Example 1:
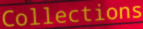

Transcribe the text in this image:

Collections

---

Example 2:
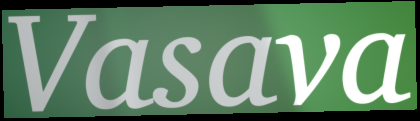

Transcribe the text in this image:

Vasava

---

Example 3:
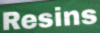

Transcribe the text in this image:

Resins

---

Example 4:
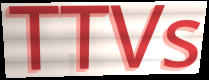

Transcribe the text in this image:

TTVs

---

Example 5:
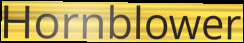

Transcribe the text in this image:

Hornblower